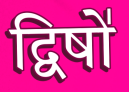
द्विषो॑